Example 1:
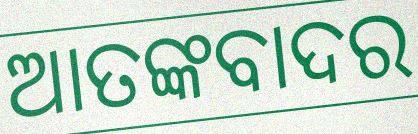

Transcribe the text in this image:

ଆତଙ୍କବାଦର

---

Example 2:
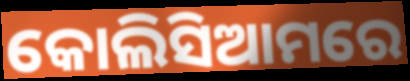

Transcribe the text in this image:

କୋଲିସିଆମରେ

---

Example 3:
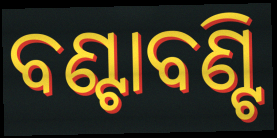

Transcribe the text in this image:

ବଣ୍ଟାବଣ୍ଟି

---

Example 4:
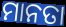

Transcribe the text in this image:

ମାନତା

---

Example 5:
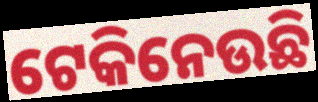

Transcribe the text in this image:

ଟେକିନେଉଛି